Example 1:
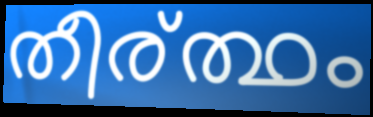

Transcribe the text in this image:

തീര്ത്ഥം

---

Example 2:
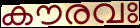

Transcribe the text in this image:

കൗരവഃ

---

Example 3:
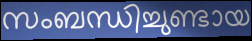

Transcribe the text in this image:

സംബന്ധിച്ചുണ്ടായ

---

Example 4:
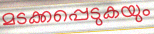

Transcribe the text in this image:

മടക്കപ്പെടുകയും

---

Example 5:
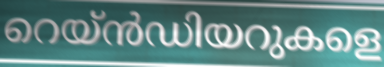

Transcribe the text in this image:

റെയ്ൻഡിയറുകളെ